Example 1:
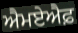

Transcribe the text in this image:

ਐਮਏਐਫ਼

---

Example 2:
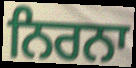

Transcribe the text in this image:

ਨਿਰਨਾ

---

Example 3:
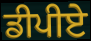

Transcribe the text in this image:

ਡੀਪੀਏ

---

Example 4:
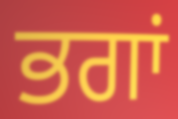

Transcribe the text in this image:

ਭਗਾਂ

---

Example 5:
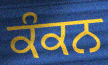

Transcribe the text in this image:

ਕੰਕਨ